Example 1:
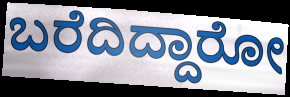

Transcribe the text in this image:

ಬರೆದಿದ್ದಾರೋ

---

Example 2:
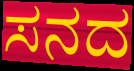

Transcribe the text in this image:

ಸನದ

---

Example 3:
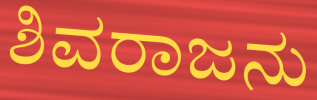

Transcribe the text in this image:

ಶಿವರಾಜನು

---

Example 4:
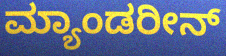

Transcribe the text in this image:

ಮ್ಯಾಂಡರೀನ್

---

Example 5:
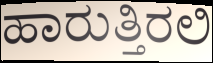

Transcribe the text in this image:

ಹಾರುತ್ತಿರಲಿ